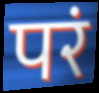
परं